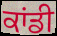
ਕਾਂਡੀ